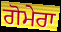
ਗੋਮੇਰਾ